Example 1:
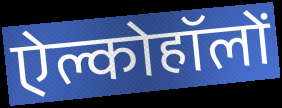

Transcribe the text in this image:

ऐल्कोहॉलों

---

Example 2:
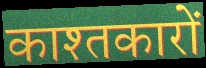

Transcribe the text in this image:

काश्तकारों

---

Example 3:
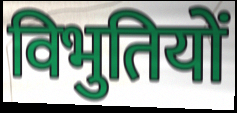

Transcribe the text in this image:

विभुतियों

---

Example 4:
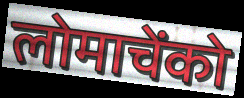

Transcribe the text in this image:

लोमाचेंको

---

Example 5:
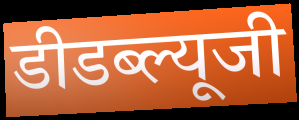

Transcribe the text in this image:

डीडब्ल्यूजी